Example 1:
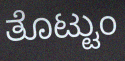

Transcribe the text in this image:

ತೊಟ್ಟುಂ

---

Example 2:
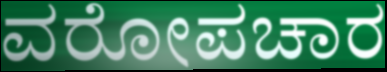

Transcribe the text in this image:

ವರೋಪಚಾರ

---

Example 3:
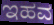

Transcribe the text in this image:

ಇಹವ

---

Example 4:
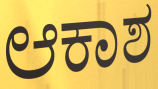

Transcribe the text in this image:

ಆಕಾಶ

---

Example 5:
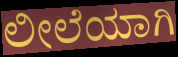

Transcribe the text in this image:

ಲೀಲೆಯಾಗಿ